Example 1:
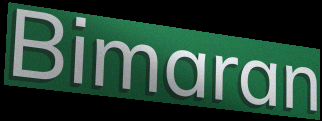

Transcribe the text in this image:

Bimaran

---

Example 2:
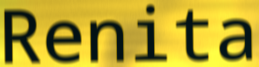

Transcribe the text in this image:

Renita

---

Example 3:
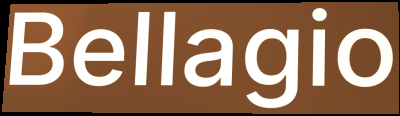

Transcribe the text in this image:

Bellagio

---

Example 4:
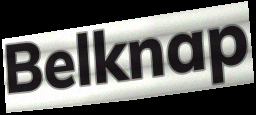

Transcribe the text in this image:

Belknap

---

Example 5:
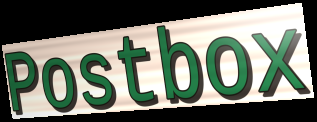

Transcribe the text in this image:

Postbox